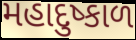
મહાદુષ્કાળ